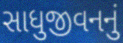
સાધુજીવનનું